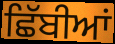
ਛਿੱਬੀਆਂ